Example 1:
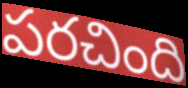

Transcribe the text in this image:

పరచింది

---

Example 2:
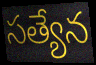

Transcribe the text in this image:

సత్యేన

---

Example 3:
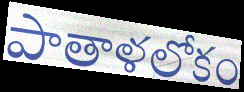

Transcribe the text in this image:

పాతాళలోకం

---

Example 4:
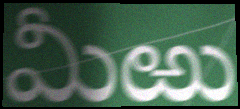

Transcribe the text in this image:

మీఱు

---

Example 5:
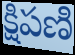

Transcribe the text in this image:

క్షిపణి